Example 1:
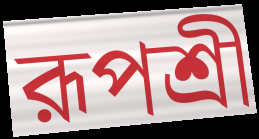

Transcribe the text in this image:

রূপশ্রী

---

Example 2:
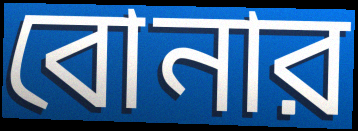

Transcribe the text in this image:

বোনার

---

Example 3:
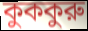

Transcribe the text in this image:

কুককুরু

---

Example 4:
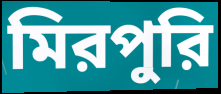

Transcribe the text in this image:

মিরপুরি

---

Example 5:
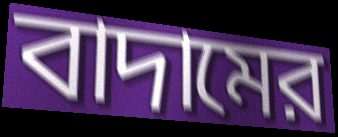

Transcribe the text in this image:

বাদামের